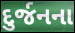
દુર્જનના